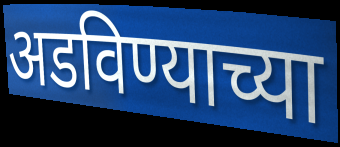
अडविण्याच्या